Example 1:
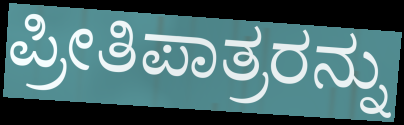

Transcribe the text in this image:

ಪ್ರೀತಿಪಾತ್ರರನ್ನು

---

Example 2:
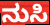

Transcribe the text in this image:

ನುಸಿ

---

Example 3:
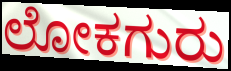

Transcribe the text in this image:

ಲೋಕಗುರು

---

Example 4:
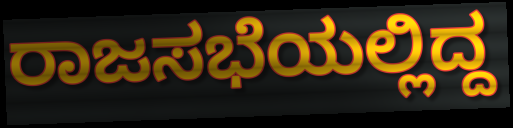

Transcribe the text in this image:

ರಾಜಸಭೆಯಲ್ಲಿದ್ದ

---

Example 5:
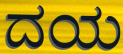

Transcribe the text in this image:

ದಯ